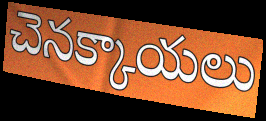
చెనక్కాయలు